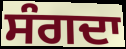
ਸੰਗਦਾ